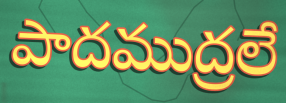
పాదముద్రలే